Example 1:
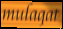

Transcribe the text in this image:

mulaqat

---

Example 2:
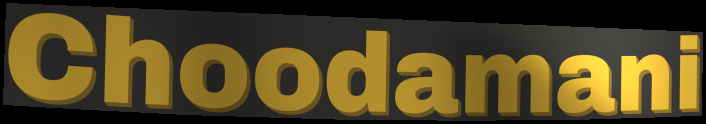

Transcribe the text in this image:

Choodamani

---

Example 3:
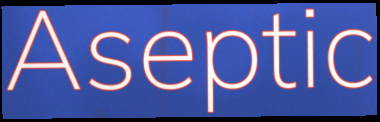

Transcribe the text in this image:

Aseptic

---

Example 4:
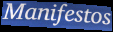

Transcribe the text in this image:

Manifestos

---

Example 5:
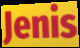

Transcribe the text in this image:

Jenis